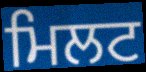
ਮਿਲਟ